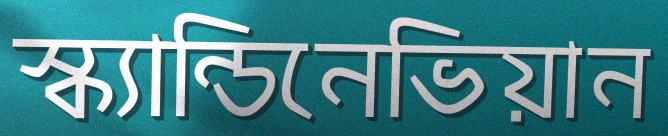
স্ক্যান্ডিনেভিয়ান